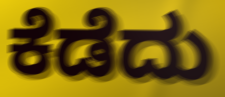
ಕೆಡೆದು